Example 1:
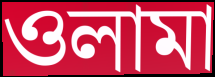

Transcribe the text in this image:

ওলামা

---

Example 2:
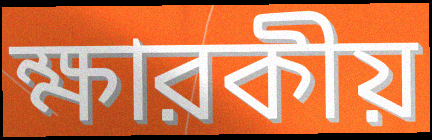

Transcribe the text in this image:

ক্ষারকীয়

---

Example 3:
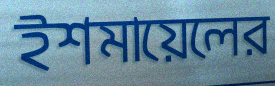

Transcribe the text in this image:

ইশমায়েলের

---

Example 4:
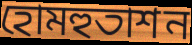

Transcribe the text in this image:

হোমহুতাশন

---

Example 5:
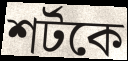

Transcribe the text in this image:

শর্টকে